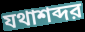
যথাশব্দর